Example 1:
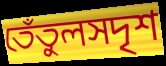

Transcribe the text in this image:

তেঁতুলসদৃশ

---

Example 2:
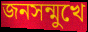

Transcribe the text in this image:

জনসন্মুখে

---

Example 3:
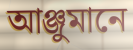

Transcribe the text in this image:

আঞ্জুমানে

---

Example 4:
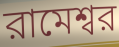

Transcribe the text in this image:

রামেশ্বর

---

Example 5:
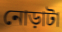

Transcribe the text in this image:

নোড়াটা